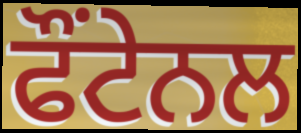
ਫੌਂਟੇਨਲ